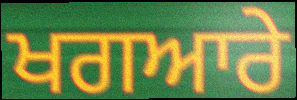
ਖਗਆਰੇ